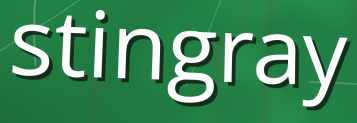
stingray